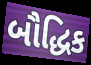
બૌદ્ધિક